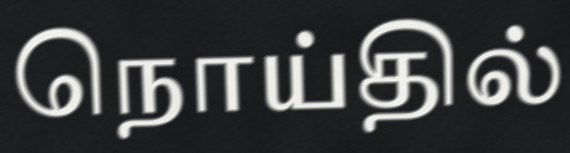
நொய்தில்